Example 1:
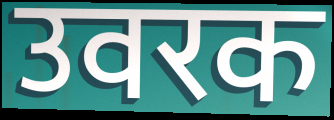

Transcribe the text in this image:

उवरक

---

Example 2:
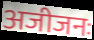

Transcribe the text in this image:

अजीजनः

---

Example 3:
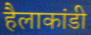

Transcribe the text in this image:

हैलाकांडी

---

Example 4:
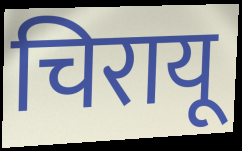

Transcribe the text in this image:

चिरायू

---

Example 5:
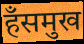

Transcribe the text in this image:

हँसमुख